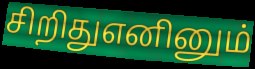
சிறிதுஎனினும்